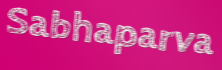
Sabhaparva